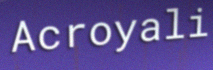
Acroyali